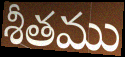
శీతము